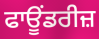
ਫਾਊਂਡਰੀਜ਼